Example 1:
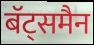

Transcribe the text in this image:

बॅट्समैन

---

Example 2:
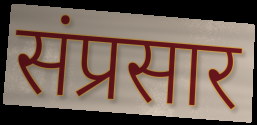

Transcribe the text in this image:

संप्रसार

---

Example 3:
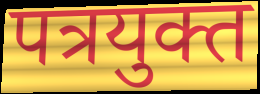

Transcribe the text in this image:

पत्रयुक्त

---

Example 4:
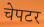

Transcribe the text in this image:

चेपटर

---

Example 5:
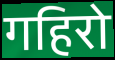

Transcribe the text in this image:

गहिरो